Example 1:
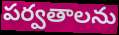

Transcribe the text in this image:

పర్వతాలను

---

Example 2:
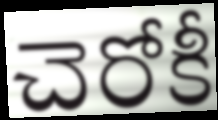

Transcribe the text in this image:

చెరోకీ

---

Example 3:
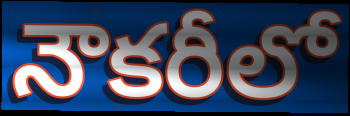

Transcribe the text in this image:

నౌకరీలో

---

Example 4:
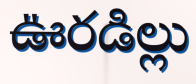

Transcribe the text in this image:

ఊరడిల్లు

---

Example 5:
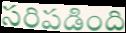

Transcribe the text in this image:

సరిపడింది